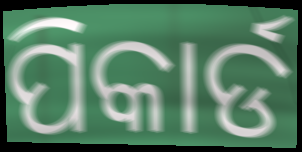
ପିକାର୍ଡ